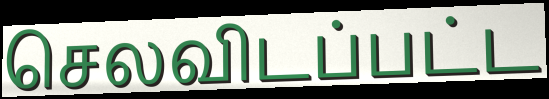
செலவிடப்பட்ட